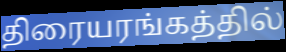
திரையரங்கத்தில்